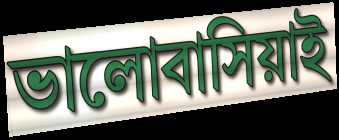
ভালোবাসিয়াই